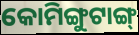
କୋମିଙ୍ଗୁଟାଙ୍ଗ୍